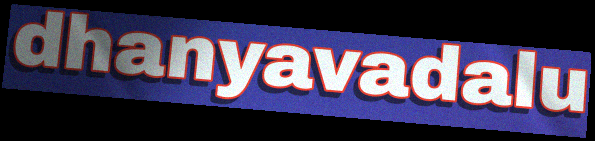
dhanyavadalu